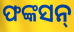
ଫଙ୍କସନ୍